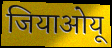
जियाओयू